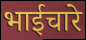
भाईचारे